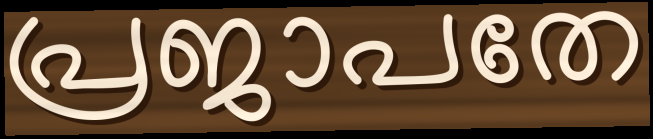
പ്രജാപതേ